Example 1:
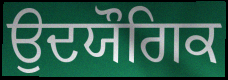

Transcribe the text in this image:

ਉਦਯੌਗਿਕ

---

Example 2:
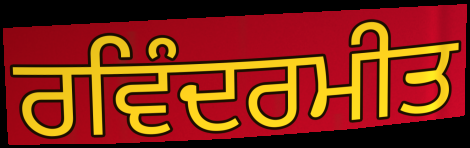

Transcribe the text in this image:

ਰਵਿੰਦਰਮੀਤ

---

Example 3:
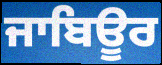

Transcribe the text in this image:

ਜਾਬਿਊਰ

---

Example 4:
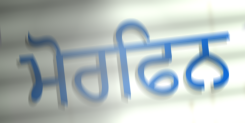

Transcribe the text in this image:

ਮੋਰਫਿਨ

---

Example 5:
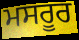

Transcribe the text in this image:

ਮਸਰੂਰ